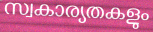
സ്വകാര്യതകളും